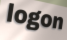
logon